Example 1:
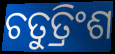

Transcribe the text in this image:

ଚତୁତ୍ରିଂଶ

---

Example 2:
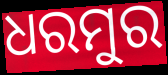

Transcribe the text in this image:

ଧରମୁର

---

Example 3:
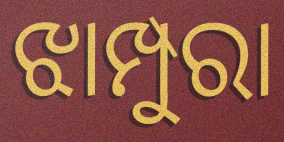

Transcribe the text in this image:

ଝାମ୍ପୁରା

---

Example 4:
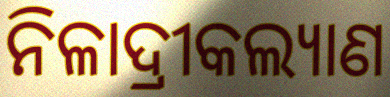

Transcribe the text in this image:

ନିଳାଦ୍ରୀକଲ୍ୟାଣ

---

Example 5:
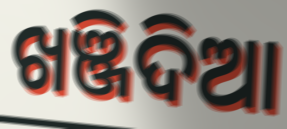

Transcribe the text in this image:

ଖଞ୍ଜିଦିଆ